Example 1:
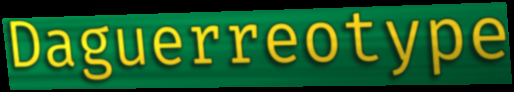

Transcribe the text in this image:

Daguerreotype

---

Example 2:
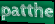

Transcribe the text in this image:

patthe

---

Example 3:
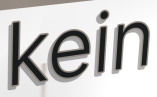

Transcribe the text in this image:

kein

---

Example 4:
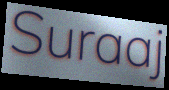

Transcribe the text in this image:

Suraaj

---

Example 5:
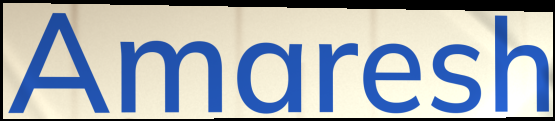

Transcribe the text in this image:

Amaresh